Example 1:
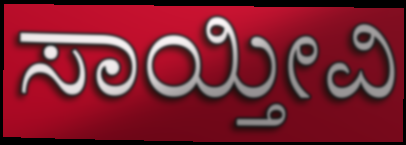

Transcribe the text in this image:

ಸಾಯ್ತೀವಿ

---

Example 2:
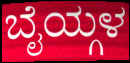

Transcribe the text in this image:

ಬೈಯ್ಗಳ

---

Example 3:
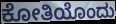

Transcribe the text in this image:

ಕೋತಿಯೊಂದು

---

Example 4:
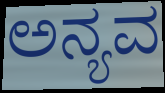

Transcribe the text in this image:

ಅನ್ಯವ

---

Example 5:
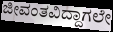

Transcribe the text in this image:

ಜೀವಂತವಿದ್ದಾಗಲೇ